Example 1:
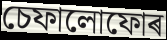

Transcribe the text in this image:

চেফালোফোৰ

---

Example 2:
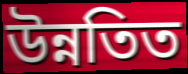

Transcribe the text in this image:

উন্নতিত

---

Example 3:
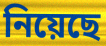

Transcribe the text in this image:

নিয়েছে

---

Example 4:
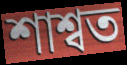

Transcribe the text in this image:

শাশ্বত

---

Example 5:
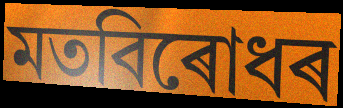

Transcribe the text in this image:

মতবিৰোধৰ